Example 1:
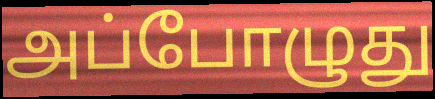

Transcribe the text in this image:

அப்போழுது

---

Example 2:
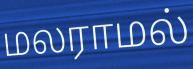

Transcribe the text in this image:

மலராமல்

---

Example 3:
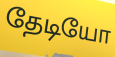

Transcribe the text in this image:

தேடியோ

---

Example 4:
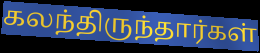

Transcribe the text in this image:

கலந்திருந்தார்கள்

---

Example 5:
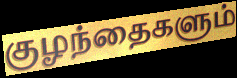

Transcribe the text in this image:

குழந்தைகளும்